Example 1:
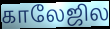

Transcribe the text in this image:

காலேஜில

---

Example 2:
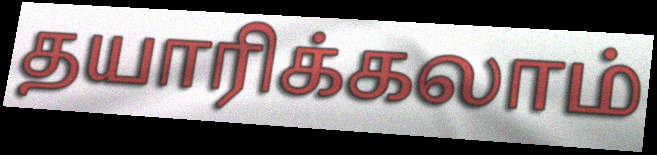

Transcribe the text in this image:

தயாரிக்கலாம்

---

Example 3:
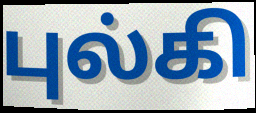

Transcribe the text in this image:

புல்கி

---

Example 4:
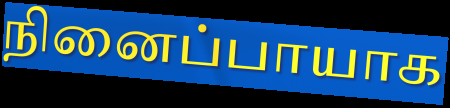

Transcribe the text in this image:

நினைப்பாயாக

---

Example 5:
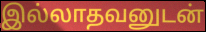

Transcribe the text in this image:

இல்லாதவனுடன்